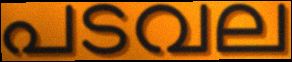
പടവല